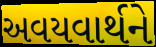
અવયવાર્થને